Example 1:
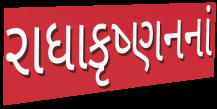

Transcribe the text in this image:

રાધાકૃષ્ણનનાં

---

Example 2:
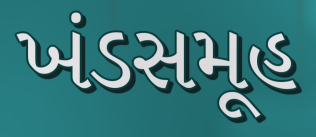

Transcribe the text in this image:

ખંડસમૂહ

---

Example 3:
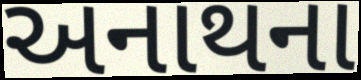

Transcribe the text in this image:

અનાથના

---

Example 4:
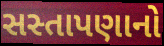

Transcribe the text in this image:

સસ્તાપણાનો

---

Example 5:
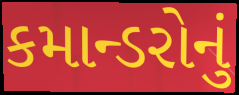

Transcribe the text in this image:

કમાન્ડરોનું